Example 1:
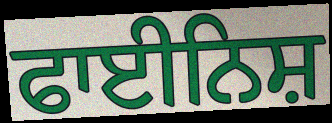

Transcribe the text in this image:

ਫਾਈਨਿਸ਼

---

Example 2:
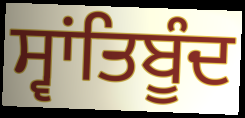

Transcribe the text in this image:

ਸ੍ਵਾਂਤਿਬੂੰਦ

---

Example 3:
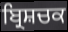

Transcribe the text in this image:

ਬ੍ਰਿਸ਼ਚਕ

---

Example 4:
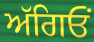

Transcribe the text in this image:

ਅੱਗਿਓਂ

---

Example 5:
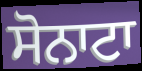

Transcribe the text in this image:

ਸੋਨਾਟਾ